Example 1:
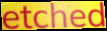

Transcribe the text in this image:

etched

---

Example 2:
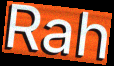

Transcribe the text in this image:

Rah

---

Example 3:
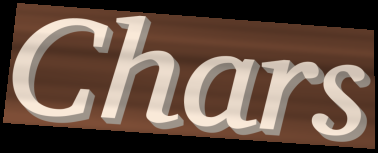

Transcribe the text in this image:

Chars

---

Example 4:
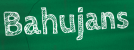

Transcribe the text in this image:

Bahujans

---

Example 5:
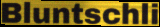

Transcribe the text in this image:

Bluntschli